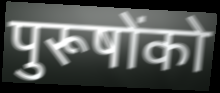
पुरूषोंको